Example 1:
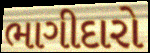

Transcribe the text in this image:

ભાગીદારો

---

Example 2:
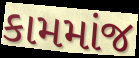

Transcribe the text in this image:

કામમાંજ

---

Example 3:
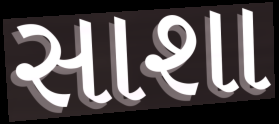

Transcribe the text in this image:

સાશા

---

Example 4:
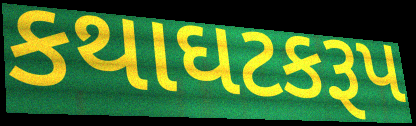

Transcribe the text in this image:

કથાઘટકરૂપ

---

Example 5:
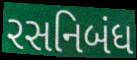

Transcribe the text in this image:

રસનિબંધ